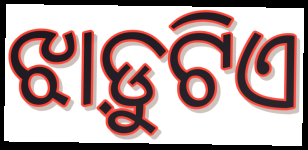
ଝାଡ଼ୁଟିଏ